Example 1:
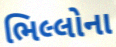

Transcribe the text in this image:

ભિલ્લોના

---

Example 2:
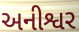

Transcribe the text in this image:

અનીશ્વર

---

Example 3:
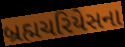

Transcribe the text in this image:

બ્રહ્મચરિયેસના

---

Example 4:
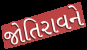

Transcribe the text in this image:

જોતિરાવને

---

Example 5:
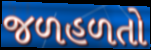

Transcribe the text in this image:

જળહળતો